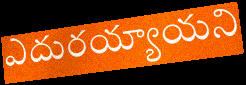
ఎదురయ్యాయని